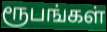
ரூபங்கள்